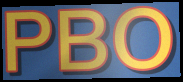
PBO